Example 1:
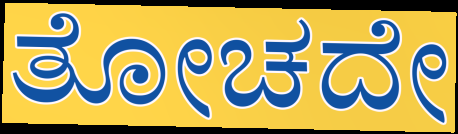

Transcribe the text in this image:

ತೋಚದೇ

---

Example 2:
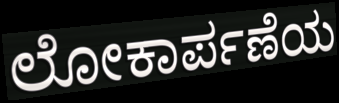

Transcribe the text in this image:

ಲೋಕಾರ್ಪಣೆಯ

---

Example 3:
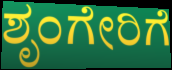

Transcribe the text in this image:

ಶೃಂಗೇರಿಗೆ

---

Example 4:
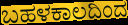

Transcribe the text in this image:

ಬಹಳಕಾಲದಿಂದ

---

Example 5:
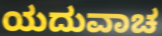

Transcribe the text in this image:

ಯದುವಾಚ